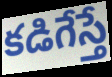
కడిగేస్తే